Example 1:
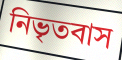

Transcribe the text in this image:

নিভৃতবাস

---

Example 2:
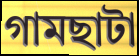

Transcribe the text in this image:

গামছাটা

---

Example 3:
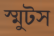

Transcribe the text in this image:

স্মুটস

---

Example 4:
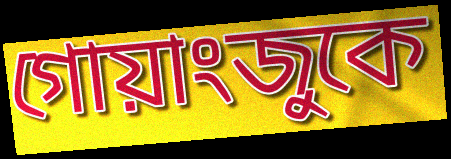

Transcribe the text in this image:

গোয়াংজুকে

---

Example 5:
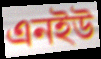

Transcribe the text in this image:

এনইউ